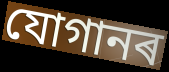
যোগানৰ